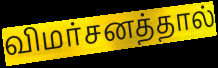
விமர்சனத்தால்